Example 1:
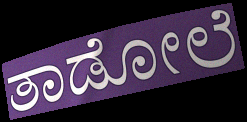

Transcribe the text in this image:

ತಾಡೋಲೆ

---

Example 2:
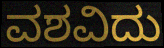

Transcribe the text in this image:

ವಶವಿದು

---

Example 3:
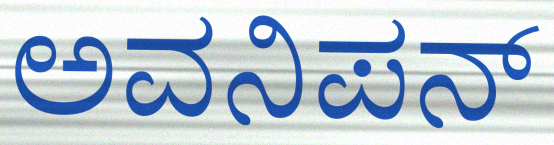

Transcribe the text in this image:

ಅವನಿಪನ್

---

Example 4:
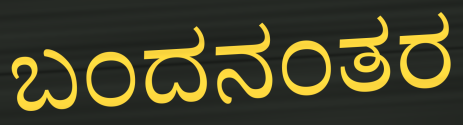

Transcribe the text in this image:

ಬಂದನಂತರ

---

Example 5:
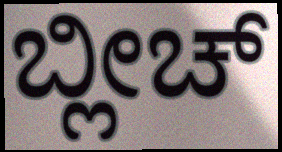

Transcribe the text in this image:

ಬ್ಲೀಚ್